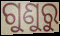
ଗୁଣୁରୁ